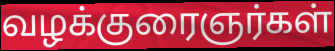
வழக்குரைஞர்கள்